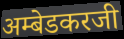
अम्बेडकरजी